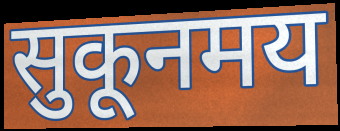
सुकूनमय